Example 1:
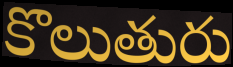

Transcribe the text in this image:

కొలుతురు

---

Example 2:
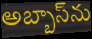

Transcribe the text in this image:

అబ్బాస్‌ను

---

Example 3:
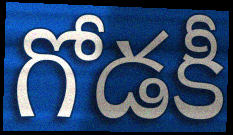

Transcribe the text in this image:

గోడకీ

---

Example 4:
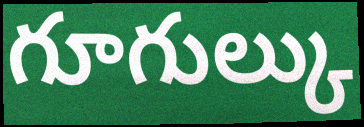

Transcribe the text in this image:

గూగుల్కు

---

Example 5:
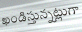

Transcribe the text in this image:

ఖండిస్తున్నట్లుగా